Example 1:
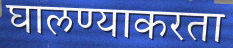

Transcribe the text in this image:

घालण्याकरता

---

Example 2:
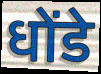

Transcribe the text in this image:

धोंडे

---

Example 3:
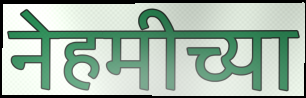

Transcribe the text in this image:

नेहमीच्या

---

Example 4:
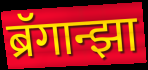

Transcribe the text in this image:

ब्रॅगान्झा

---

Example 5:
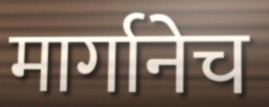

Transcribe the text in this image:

मार्गानेच